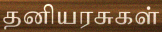
தனியரசுகள்